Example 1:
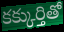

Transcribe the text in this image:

కక్కుర్తితో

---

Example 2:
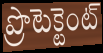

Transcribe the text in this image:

ప్రొటెక్టెంట్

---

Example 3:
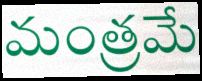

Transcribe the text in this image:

మంత్రమే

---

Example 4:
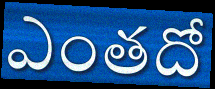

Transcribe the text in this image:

ఎంతదో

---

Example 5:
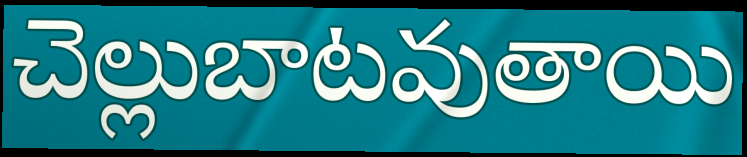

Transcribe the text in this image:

చెల్లుబాటవుతాయి